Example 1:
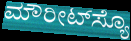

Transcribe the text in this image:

ಮೌರೀಟ್‌ಸ್ಯೊ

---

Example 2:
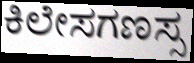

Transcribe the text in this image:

ಕಿಲೇಸಗಣಸ್ಸ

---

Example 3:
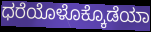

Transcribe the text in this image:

ಧರೆಯೊಳೊಕ್ಕೊಡೆಯಾ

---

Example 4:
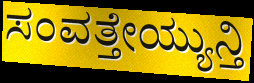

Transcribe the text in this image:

ಸಂವತ್ತೇಯ್ಯುನ್ತಿ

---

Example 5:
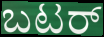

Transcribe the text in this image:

ಬಟರ್